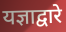
यज्ञाद्वारे